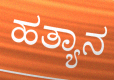
ಹತ್ಯಾನ